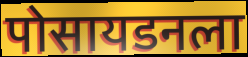
पोसायडनला